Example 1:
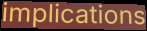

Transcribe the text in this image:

implications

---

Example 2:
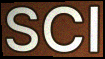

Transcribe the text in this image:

SCI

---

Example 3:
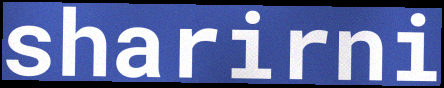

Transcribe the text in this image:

sharirni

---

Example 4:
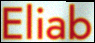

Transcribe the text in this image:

Eliab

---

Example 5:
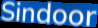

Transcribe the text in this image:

Sindoor